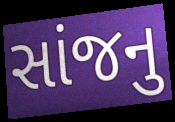
સાંજનુ